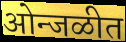
ओन्जळीत